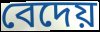
বেদেয়